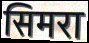
सिमरा